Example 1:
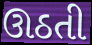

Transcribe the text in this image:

ઊઠતી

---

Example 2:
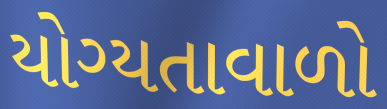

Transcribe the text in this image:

યોગ્યતાવાળો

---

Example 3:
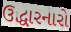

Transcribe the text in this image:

ઉદ્ધારનારો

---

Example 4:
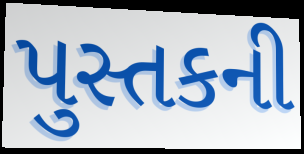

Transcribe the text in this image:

પુસ્તકની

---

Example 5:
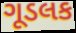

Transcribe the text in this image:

ગૂડલક